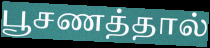
பூசணத்தால்